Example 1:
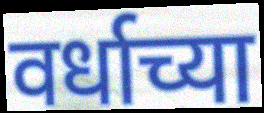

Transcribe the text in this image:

वर्धाच्या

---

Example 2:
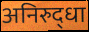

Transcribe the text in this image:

अनिरुद्धा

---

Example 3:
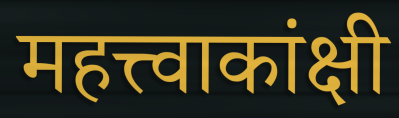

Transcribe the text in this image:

महत्त्वाकांक्षी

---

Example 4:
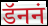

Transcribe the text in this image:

डॅननं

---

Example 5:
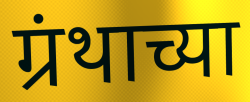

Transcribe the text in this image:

ग्रंथाच्या